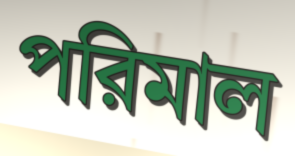
পরিমাল